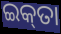
ଇକ୍‌ତା